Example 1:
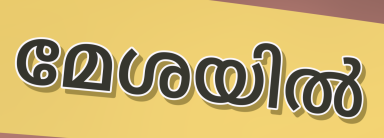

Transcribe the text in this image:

മേശയിൽ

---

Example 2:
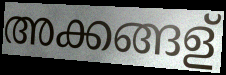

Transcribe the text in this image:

അക്കങ്ങള്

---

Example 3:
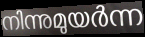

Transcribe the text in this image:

നിന്നുമുയർന്ന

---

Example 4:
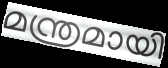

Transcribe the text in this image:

മന്ത്രമായി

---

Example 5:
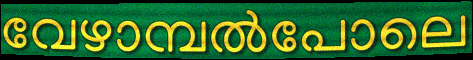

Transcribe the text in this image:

വേഴാമ്പൽപോലെ